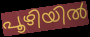
പൂഴിയിൽ